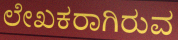
ಲೇಖಕರಾಗಿರುವ